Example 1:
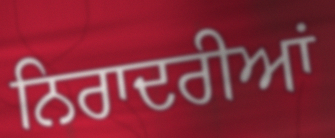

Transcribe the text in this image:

ਨਿਰਾਦਰੀਆਂ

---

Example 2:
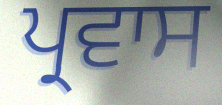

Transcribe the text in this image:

ਪ੍ਰਵਾਸ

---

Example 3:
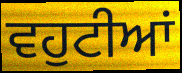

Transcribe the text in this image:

ਵਹੁਟੀਆਂ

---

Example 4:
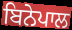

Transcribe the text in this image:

ਬਿਨੇਪਾਲ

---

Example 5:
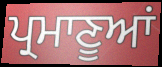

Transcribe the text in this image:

ਪ੍ਰਮਾਣੂਆਂ